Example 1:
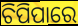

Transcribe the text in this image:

ଚିପିପାରେ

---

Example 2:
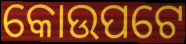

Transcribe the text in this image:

କୋଉପଟେ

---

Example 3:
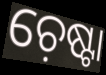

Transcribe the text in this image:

ଚ଼େଷ୍ଟା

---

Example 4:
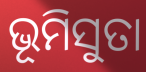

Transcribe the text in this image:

ଭୂମିସୁତା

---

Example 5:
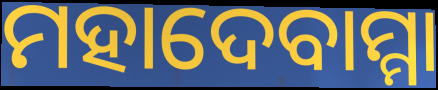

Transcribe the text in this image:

ମହାଦେବାମ୍ମା